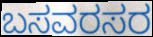
ಬಸವರಸರ